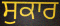
ਸੁਕਾਰ